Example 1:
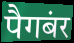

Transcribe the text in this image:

पैगबंर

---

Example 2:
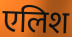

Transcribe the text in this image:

एलिश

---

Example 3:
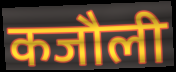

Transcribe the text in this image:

कजौली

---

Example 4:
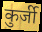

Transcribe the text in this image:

कुर्जी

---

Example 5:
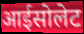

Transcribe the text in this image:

आईसोलेट